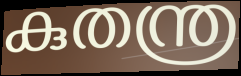
കുതന്ത്ര